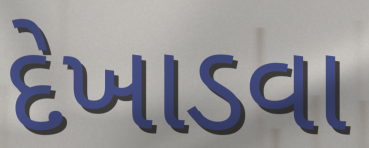
દેખાડવા